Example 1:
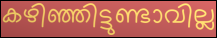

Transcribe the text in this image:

കഴിഞ്ഞിട്ടുണ്ടാവില്ല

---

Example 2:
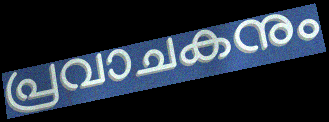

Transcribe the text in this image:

പ്രവാചകനും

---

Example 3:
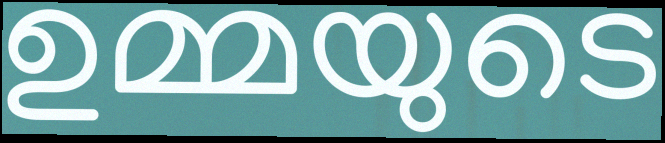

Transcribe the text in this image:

ഉമ്മയുടെ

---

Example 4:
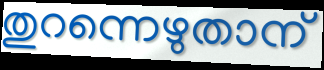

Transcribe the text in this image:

തുറന്നെഴുതാന്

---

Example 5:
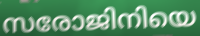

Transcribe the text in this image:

സരോജിനിയെ